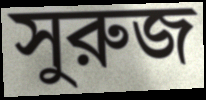
সুরুজ